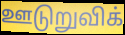
ஊடுறுவிக்